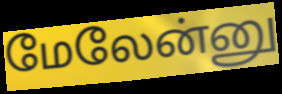
மேலேன்னு